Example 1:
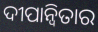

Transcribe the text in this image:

ଦୀପାନ୍ୱିତାର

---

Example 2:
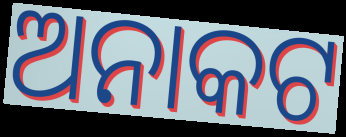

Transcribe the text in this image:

ଅନାକଟ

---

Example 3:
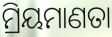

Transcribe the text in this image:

ମ୍ରିୟମାଣତା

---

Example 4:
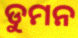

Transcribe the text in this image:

ଡୁମନ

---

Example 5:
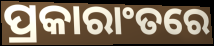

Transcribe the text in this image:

ପ୍ରକାରାଂତରେ